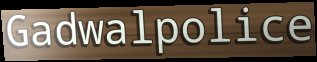
Gadwalpolice